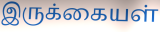
இருக்கையள்